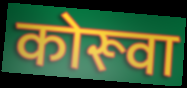
कोरूवा